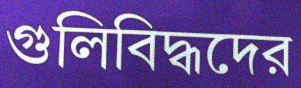
গুলিবিদ্ধদের